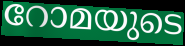
റോമയുടെ